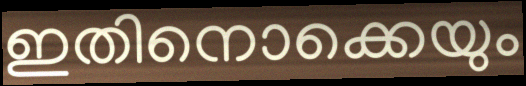
ഇതിനൊക്കെയും